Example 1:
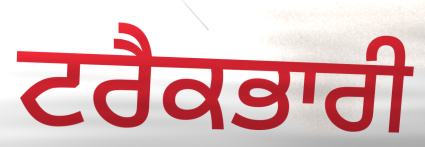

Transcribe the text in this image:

ਟਰੈਕਭਾਰੀ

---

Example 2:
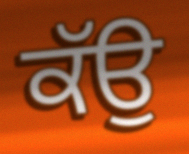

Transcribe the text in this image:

ਕੱਉ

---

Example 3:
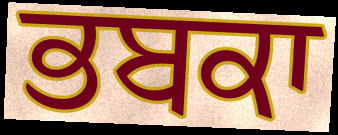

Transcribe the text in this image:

ਭਬਕਾ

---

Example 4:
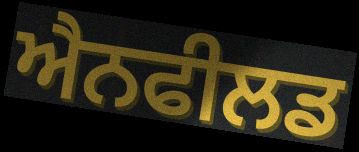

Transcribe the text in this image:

ਐਨਫੀਲਡ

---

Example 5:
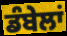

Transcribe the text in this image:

ਡੰਬੇਲਾਂ